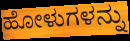
ಹೋಳುಗಳನ್ನು